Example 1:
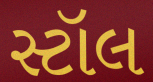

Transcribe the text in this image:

સ્ટૉલ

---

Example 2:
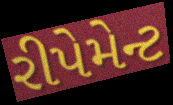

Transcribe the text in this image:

રીપેમેન્ટ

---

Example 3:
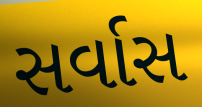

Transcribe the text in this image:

સર્વાસ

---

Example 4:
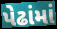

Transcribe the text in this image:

પેઢાંમાં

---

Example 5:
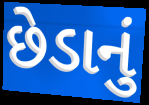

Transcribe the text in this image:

છેડાનું